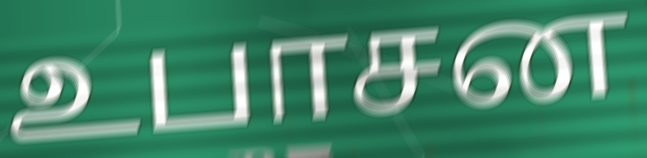
உபாசன